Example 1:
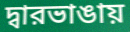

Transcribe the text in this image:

দ্বারভাঙায়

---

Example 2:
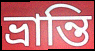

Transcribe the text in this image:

ভ্রান্তি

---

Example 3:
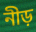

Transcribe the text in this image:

নীড়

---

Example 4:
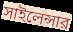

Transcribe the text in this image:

সাইলেন্সার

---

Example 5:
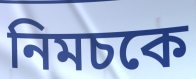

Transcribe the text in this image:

নিমচকে